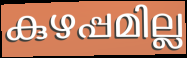
കുഴപ്പമില്ല